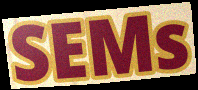
SEMs